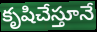
కృషిచేస్తూనే